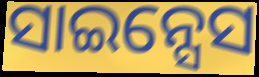
ସାଇନ୍ସେସ